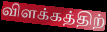
விளக்கத்திற்